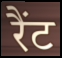
रैंट